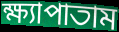
ক্ষ্যাপাতাম